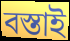
বস্তাই